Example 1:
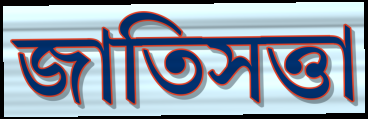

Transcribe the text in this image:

জাতিসত্তা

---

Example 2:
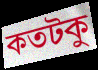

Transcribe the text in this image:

কতটকু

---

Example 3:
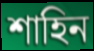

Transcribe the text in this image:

শাহিন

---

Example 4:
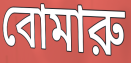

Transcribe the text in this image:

বোমারু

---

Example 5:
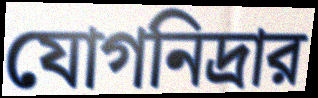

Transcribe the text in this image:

যোগনিদ্রার